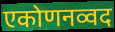
एकोणनव्वद